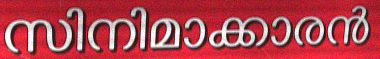
സിനിമാക്കാരൻ